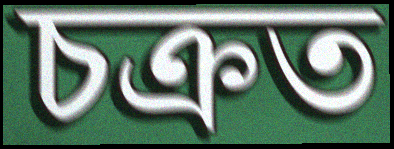
চক্ৰত